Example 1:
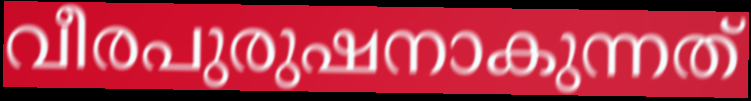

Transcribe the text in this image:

വീരപുരുഷനാകുന്നത്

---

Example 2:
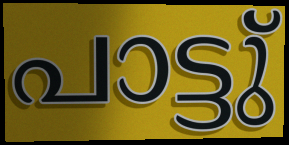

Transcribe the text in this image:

പാട്ടു്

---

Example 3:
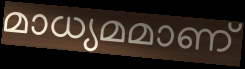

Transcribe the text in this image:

മാധ്യമമാണ്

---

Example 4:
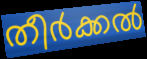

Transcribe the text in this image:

തീർക്കൽ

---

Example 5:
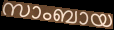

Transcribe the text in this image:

സാംബായ